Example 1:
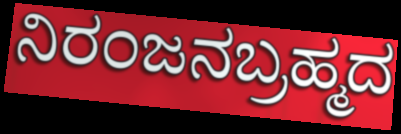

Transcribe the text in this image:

ನಿರಂಜನಬ್ರಹ್ಮದ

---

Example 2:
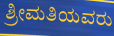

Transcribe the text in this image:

ಶ್ರೀಮತಿಯವರು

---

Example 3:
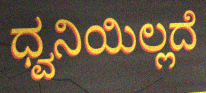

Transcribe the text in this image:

ಧ್ವನಿಯಿಲ್ಲದೆ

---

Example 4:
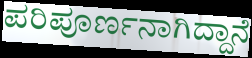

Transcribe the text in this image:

ಪರಿಪೂರ್ಣನಾಗಿದ್ದಾನೆ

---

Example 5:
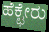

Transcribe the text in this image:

ಹೆಕ್ಟೇರು